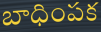
బాధింపక